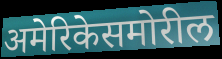
अमेरिकेसमोरील